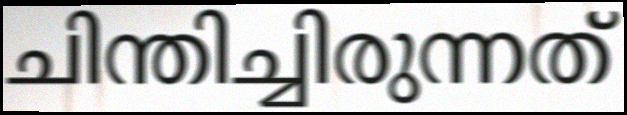
ചിന്തിച്ചിരുന്നത്